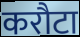
करौटा